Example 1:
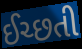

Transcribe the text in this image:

ઈચ્છતી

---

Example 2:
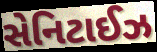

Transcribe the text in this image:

સેનિટાઈઝ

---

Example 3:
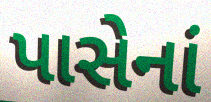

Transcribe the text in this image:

પાસેનાં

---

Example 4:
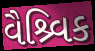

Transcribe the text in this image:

વૈશ્ર્વિક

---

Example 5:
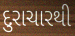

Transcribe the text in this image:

દુરાચારથી